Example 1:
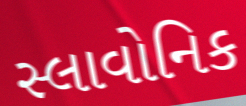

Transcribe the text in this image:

સ્લાવોનિક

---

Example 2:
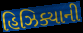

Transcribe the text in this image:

હિઝિક્યાની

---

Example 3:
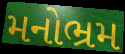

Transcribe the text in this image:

મનોભ્રમ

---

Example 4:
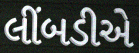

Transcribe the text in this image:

લીંબડીએ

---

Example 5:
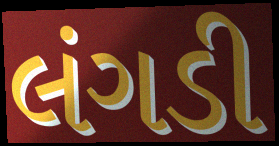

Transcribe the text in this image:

લંગડી